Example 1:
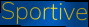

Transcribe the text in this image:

Sportive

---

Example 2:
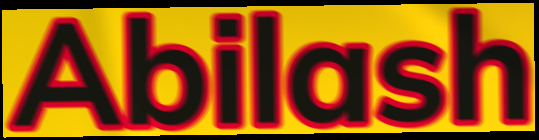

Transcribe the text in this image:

Abilash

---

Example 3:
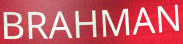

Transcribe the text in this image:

BRAHMAN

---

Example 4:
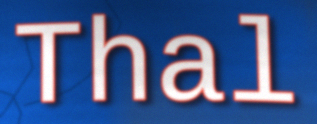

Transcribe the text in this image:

Thal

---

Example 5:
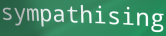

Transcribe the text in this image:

sympathising